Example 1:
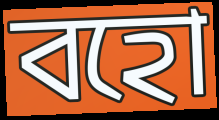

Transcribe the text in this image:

বহো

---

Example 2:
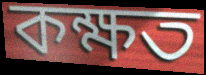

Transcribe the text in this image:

কক্ষত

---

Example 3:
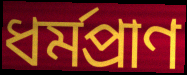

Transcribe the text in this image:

ধৰ্মপ্ৰাণ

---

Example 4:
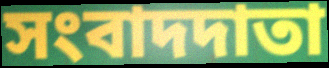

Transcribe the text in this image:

সংবাদদাতা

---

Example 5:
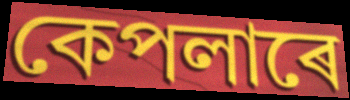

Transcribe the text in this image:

কেপলাৰে